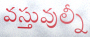
వస్తువుల్నీ